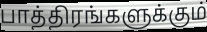
பாத்திரங்களுக்கும்